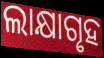
ଲାକ୍ଷାଗୃହ